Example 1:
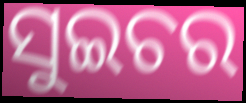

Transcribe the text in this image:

ସୁଇଚର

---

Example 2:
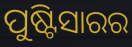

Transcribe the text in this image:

ପୁଷ୍ଟିସାରର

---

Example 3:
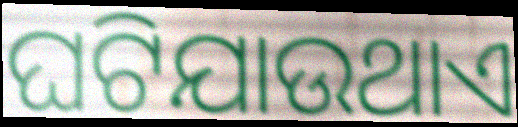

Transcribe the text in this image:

ଘଟିଯାଉଥାଏ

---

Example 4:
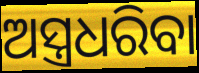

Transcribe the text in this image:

ଅସ୍ତ୍ରଧରିବା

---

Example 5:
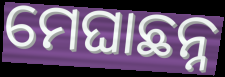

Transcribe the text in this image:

ମେଘାଛନ୍ନ